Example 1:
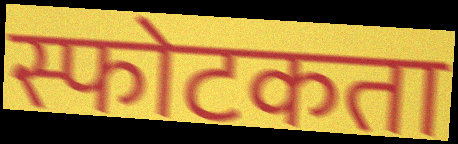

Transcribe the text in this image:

स्फोटकता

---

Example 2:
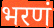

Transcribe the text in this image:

भरणं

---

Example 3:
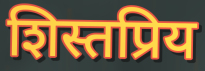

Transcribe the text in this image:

शिस्तप्रिय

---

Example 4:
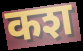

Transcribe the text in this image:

कश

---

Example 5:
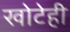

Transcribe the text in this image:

खोटेही